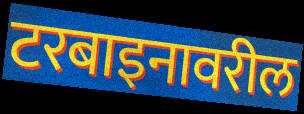
टरबाइनावरील